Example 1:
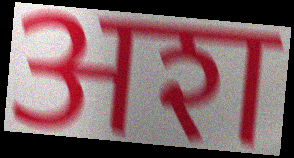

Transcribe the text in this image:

अश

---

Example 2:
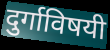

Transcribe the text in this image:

दुर्गाविषयी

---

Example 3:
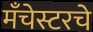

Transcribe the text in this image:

मँचेस्टरचे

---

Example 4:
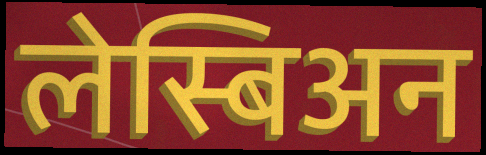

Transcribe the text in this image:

लेस्बिअन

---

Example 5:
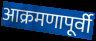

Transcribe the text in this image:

आक्रमणापूर्वी